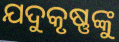
ଯଦୁକୃଷ୍ଣଙ୍କୁ